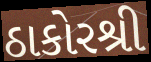
ઠાકોરશ્રી